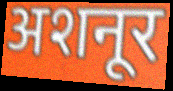
अशनूर